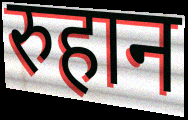
रुहान